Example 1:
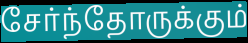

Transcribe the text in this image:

சேர்ந்தோருக்கும்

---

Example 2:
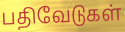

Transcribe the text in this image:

பதிவேடுகள்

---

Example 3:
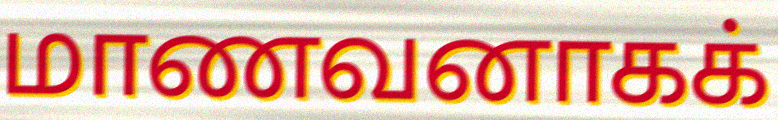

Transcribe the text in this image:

மாணவனாகக்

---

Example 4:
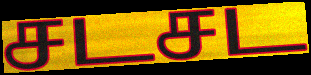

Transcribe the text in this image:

சடசட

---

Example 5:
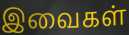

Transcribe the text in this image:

இவைகள்